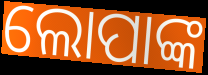
ଲୋପାଙ୍କ